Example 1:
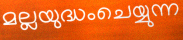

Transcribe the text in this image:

മല്ലയുദ്ധംചെയ്യുന്ന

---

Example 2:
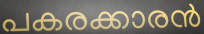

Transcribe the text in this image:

പകരക്കാരൻ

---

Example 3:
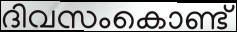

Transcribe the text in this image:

ദിവസംകൊണ്ട്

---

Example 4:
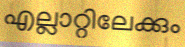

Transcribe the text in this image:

എല്ലാറ്റിലേക്കും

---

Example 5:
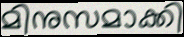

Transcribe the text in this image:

മിനുസമാക്കി